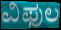
ವಿಫುಲ